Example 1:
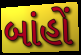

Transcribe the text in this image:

બાંહોં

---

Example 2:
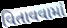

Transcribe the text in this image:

વિતાવવામાં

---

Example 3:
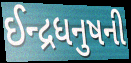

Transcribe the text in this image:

ઈન્દ્રધનુષની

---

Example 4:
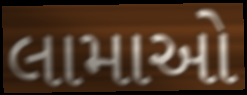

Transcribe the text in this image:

લામાઓ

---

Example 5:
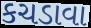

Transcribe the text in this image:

કચડાવા